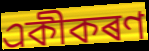
একীকৰণ